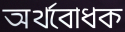
অর্থবোধক